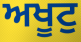
ਅਖੂਟੁ